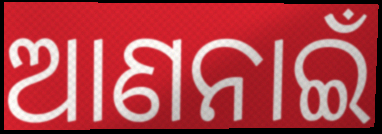
ଆଣନାଇଁ